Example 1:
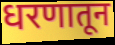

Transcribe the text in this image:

धरणातून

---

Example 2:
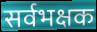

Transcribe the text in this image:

सर्वभक्षक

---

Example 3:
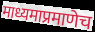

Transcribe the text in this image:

माध्यमाप्रमाणेच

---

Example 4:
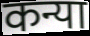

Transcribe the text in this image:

कन्या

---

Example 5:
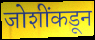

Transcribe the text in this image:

जोशींकडून